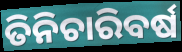
ତିନିଚାରିବର୍ଷ